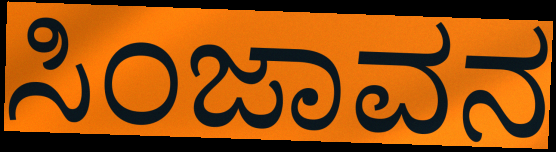
ಸಿಂಜಾವನ